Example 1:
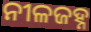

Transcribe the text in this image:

ନୀଳଜହ୍ନ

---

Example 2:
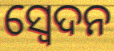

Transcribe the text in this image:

ସ୍ଵେଦନ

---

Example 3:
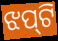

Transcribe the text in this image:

ଝପ୍‌ଟି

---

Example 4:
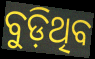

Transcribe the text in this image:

ବୁଡ଼ିଥିବ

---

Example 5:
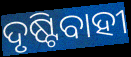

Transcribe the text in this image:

ଦୃଷ୍ଟିବାହୀ